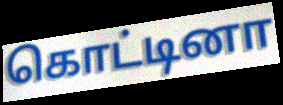
கொட்டினா